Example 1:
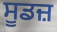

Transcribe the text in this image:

ਸੂਡਜ਼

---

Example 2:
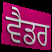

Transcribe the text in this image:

ਵੈਡਰ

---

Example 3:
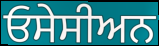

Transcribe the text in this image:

ਓਸੇਸੀਅਨ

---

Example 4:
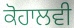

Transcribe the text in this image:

ਕੋਹਾਲਵੀ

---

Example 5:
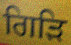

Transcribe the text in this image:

ਗਿੜਿ